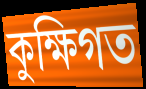
কুক্ষিগত